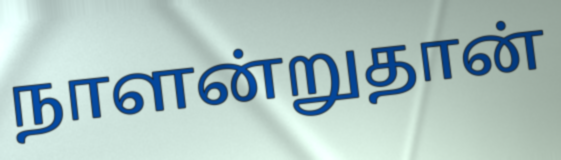
நாளன்றுதான்